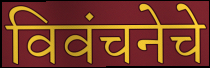
विवंचनेचे